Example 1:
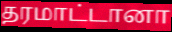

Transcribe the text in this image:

தரமாட்டானா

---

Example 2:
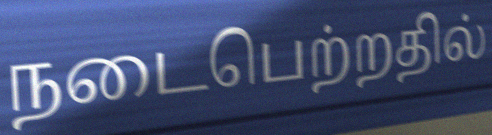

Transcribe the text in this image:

நடைபெற்றதில்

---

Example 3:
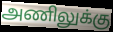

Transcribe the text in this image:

அணிலுக்கு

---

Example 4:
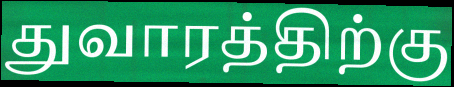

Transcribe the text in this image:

துவாரத்திற்கு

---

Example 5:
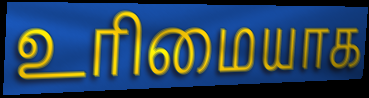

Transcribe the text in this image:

உரிமையாக